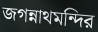
জগন্নাথমন্দির